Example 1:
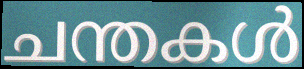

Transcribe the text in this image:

ചന്തകൾ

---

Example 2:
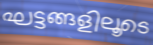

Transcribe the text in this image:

ഘട്ടങ്ങളിലൂടെ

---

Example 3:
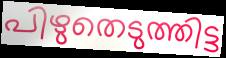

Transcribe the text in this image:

പിഴുതെടുത്തിട്ട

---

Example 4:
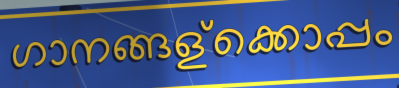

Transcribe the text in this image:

ഗാനങ്ങള്ക്കൊപ്പം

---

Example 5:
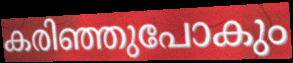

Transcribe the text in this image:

കരിഞ്ഞുപോകും